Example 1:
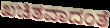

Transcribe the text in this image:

ಖಚಿತವಾದಂತೆ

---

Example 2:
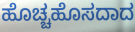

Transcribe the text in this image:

ಹೊಚ್ಚಹೊಸದಾದ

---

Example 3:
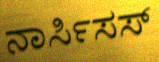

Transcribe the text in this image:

ನಾರ್ಸಿಸಸ್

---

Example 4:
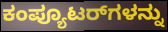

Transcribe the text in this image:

ಕಂಪ್ಯೂಟರ್‌ಗಳನ್ನು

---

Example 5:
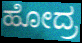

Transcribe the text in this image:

ಹೋದ್ರ